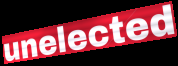
unelected